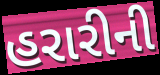
હરારીની